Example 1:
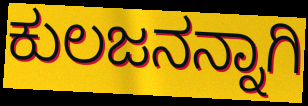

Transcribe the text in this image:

ಕುಲಜನನ್ನಾಗಿ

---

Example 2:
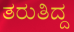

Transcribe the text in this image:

ತರುತಿದ್ದ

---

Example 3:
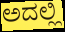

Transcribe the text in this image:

ಅದಲ್ಲಿ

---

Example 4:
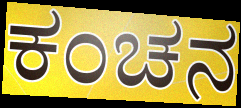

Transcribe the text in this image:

ಕಂಚನ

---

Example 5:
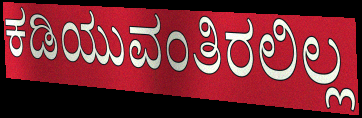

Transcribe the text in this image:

ಕಡಿಯುವಂತಿರಲಿಲ್ಲ